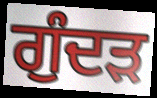
ਗੁੰਦੜ